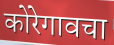
कोरेगावचा